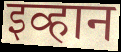
इव्हान